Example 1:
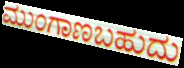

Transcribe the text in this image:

ಮುಂಗಾಣಬಹುದು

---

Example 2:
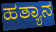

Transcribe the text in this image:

ಹತ್ಯಾನ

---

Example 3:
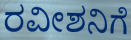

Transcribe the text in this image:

ರವೀಶನಿಗೆ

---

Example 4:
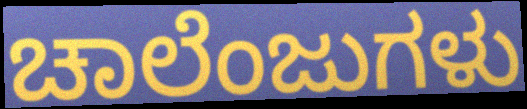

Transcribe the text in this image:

ಚಾಲೆಂಜುಗಳು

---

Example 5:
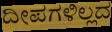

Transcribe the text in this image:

ದೀಪಗಳಿಲ್ಲದ